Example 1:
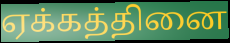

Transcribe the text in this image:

ஏக்கத்தினை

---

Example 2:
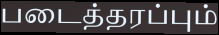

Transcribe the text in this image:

படைத்தரப்பும்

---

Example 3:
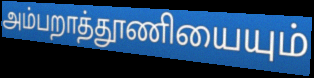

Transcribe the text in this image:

அம்பறாத்தூணியையும்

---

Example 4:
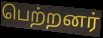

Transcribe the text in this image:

பெற்றனர்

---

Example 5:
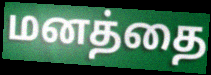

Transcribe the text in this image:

மனத்தை